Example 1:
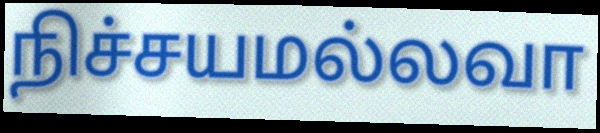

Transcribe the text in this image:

நிச்சயமல்லவா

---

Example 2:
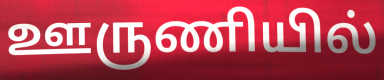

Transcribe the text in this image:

ஊருணியில்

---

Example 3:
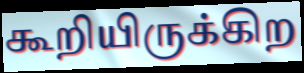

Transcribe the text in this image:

கூறியிருக்கிற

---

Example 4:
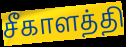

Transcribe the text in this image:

சீகாளத்தி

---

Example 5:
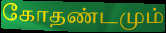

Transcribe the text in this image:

கோதண்டமும்